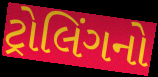
ટ્રોલિંગનો